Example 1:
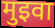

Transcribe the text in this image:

मुइवा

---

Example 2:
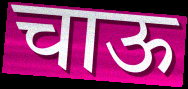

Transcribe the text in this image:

चाऊ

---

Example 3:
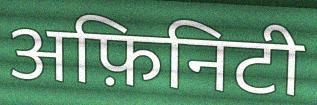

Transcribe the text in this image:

अफ़िनिटी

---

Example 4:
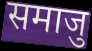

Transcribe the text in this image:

समाजु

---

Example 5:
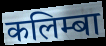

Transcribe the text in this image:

कलिम्बा